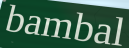
bambal